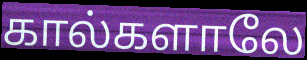
கால்களாலே